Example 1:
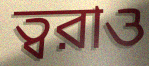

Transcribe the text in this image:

ত্বরাও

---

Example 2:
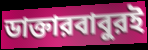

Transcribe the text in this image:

ডাক্তারবাবুরই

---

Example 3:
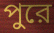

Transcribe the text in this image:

পুরে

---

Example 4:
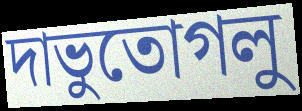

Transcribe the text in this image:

দাভুতোগলু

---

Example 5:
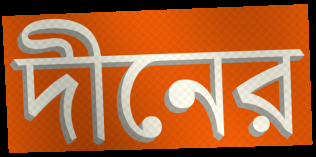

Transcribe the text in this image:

দীনের